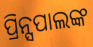
ପ୍ରିନ୍ସପାଲଙ୍କ